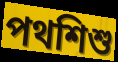
পথশিশু